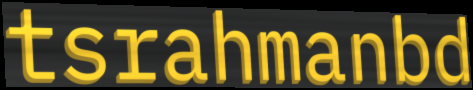
tsrahmanbd